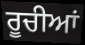
ਰੂਚੀਆਂ